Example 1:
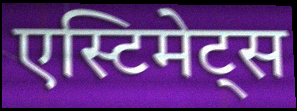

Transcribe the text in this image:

एस्टिमेट्स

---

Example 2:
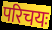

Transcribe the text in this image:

परिचयः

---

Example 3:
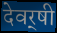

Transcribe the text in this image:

देवर्षी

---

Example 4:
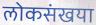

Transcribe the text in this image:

लोकसंखया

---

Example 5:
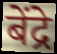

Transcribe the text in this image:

बेंद्रे